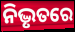
ନିଦ୍ଭୃତରେ